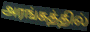
அரங்கத்தில்